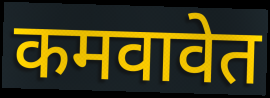
कमवावेत